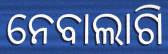
ନେବାଲାଗି